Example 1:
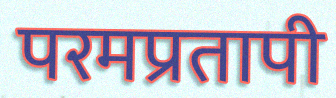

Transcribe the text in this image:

परमप्रतापी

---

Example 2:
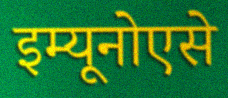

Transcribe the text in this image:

इम्यूनोएसे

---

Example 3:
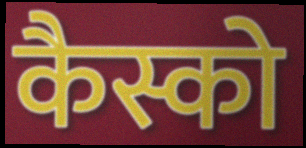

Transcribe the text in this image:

कैस्को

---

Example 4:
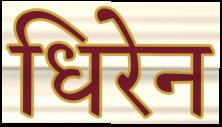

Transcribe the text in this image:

धिरेन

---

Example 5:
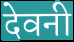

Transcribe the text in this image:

देवनी